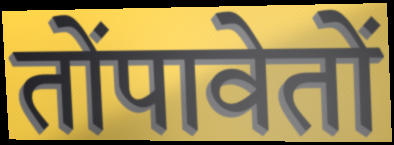
तोंपावेतों